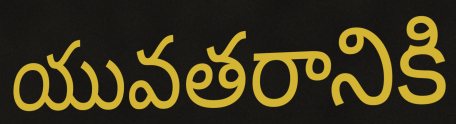
యువతరానికి